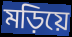
মড়িয়ে